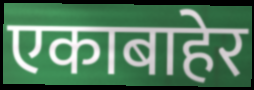
एकाबाहेर